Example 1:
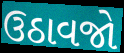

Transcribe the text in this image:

ઉઠાવજો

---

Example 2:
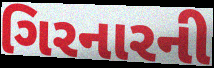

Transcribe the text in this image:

ગિરનારની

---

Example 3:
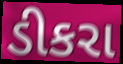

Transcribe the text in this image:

ડીકરા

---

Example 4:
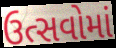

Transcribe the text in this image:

ઉત્સવોમાં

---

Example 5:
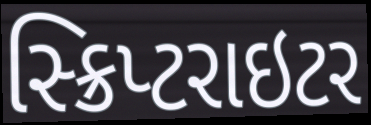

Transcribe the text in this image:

સ્ક્રિપ્ટરાઇટર